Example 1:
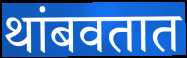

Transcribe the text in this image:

थांबवतात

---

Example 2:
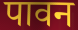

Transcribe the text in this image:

पावन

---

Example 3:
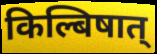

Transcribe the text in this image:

किल्बिषात्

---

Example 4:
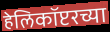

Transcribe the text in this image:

हेलिकॉप्टरच्या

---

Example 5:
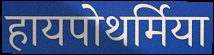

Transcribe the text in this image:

हायपोथर्मिया